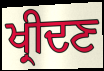
ਖ੍ਰੀਦਣ